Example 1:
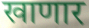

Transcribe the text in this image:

खाणार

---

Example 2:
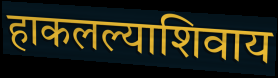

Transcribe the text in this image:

हाकलल्याशिवाय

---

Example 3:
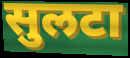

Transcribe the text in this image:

सुलटा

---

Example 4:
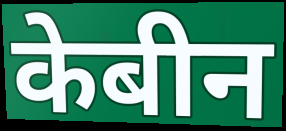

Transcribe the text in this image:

केबीन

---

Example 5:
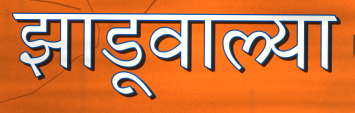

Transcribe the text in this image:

झाडूवाल्या